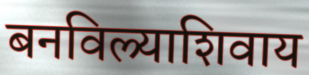
बनविल्याशिवाय